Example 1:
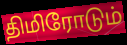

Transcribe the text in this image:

திமிரோடும்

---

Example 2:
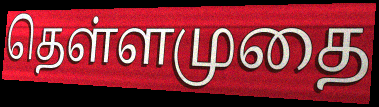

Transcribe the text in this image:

தெள்ளமுதை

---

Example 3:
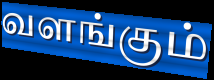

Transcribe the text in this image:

வளங்கும்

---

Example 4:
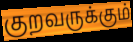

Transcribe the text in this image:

குறவருக்கும்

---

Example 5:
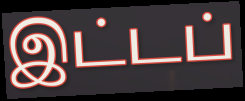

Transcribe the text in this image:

இட்டப்